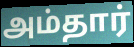
அம்தார்